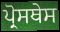
ਪ੍ਰੋਸਥੇਸ